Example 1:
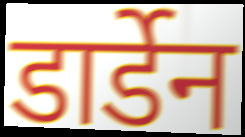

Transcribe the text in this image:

डार्डेन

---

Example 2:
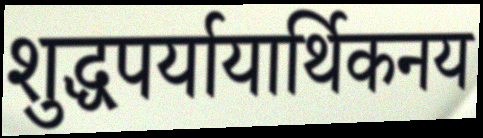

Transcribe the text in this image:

शुद्धपर्यायार्थिकनय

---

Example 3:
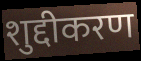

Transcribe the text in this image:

शुद्दीकरण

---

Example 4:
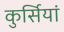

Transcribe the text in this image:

कुर्सियां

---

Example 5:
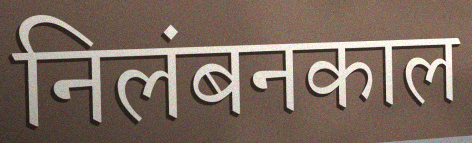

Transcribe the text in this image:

निलंबनकाल